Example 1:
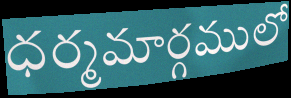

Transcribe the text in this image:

ధర్మమార్గములో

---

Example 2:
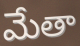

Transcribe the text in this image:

మేతా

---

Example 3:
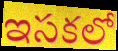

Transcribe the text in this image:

ఇసకలో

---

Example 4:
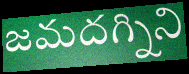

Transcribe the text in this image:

జమదగ్నిని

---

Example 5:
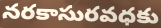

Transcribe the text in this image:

నరకాసురవధకు